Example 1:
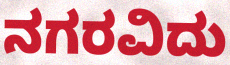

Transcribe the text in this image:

ನಗರವಿದು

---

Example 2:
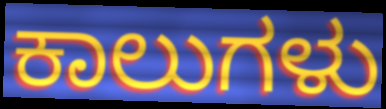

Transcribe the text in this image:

ಕಾಲುಗಳು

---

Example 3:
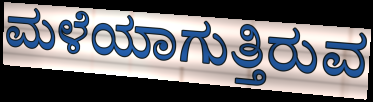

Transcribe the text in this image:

ಮಳೆಯಾಗುತ್ತಿರುವ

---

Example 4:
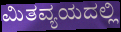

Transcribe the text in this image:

ಮಿತವ್ಯಯದಲ್ಲಿ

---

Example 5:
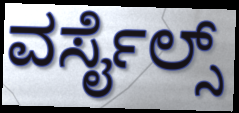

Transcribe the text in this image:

ವರ್ಸೈಲ್ಸ್